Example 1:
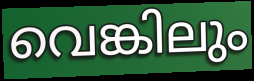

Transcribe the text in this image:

വെങ്കിലും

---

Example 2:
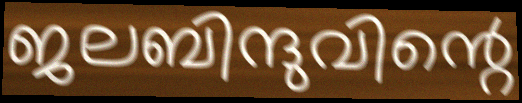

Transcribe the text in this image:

ജലബിന്ദുവിന്റെ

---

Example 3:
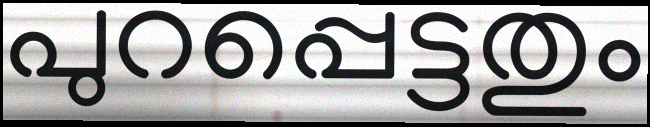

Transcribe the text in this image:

പുറപ്പെട്ടതും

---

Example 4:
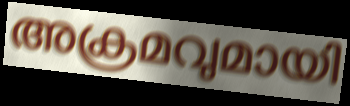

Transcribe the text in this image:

അക്രമവുമായി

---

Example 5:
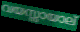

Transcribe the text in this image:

വയസ്സായാല്